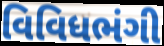
વિવિધભંગી